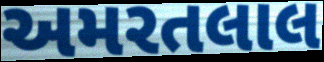
અમરતલાલ